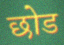
छोड